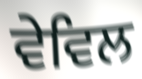
ਵੇਵਿਲ